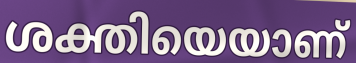
ശക്തിയെയാണ്